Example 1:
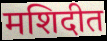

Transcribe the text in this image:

मशिदीत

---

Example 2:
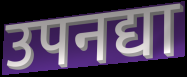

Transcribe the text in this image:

उपनद्या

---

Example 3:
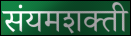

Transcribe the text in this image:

संयमशक्ती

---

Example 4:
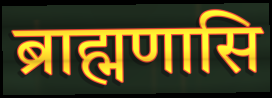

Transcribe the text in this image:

ब्राह्मणासि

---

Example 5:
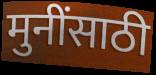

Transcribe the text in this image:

मुनींसाठी